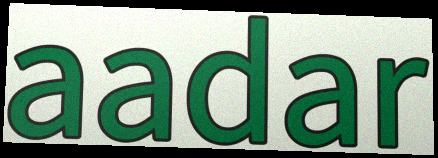
aadar